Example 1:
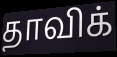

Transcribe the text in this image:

தாவிக்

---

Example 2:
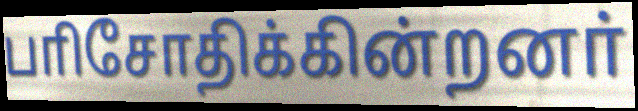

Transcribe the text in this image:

பரிசோதிக்கின்றனர்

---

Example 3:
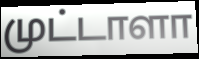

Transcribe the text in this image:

முட்டாளா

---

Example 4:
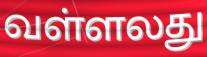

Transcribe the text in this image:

வள்ளலது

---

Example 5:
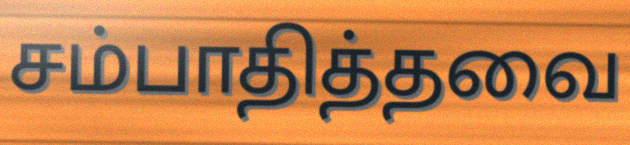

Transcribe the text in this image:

சம்பாதித்தவை